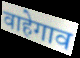
वाहेगाव